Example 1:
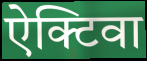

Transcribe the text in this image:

ऐक्टिवा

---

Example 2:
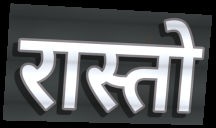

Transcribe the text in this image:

रास्तो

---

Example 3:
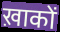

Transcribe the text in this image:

ख़ाकों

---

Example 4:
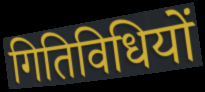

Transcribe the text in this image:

गितिविधियों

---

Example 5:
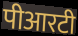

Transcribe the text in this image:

पीआरटी